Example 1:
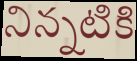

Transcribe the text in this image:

నిన్నటికి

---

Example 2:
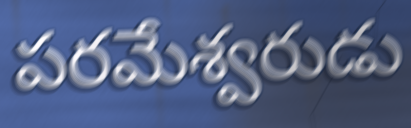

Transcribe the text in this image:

పరమేశ్వరుడు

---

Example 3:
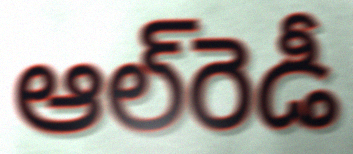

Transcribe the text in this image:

ఆల్‌రెడీ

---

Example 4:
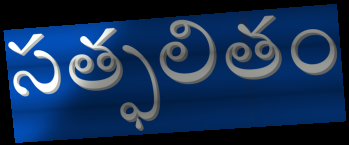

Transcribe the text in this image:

సత్ఫలితం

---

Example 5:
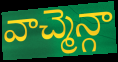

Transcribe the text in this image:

వాచ్మెన్గా